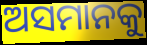
ଅସମାନକୁ